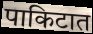
पाकिटात